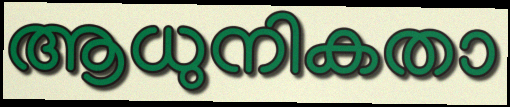
ആധുനികതാ